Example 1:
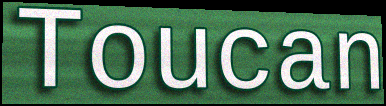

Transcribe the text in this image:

Toucan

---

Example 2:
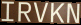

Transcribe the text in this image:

IRVKN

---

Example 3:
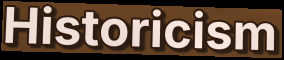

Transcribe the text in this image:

Historicism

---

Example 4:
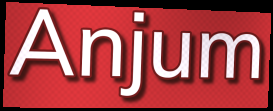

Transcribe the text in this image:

Anjum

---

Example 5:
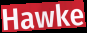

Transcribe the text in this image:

Hawke